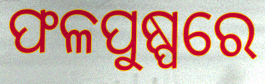
ଫଳପୁଷ୍ପରେ